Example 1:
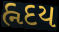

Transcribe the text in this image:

હ્નદય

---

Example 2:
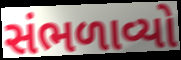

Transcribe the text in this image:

સંભળાવ્યો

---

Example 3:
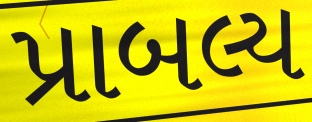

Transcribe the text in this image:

પ્રાબલ્ય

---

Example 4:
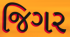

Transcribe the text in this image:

જિગર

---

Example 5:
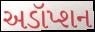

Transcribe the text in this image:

અડૉપ્શન